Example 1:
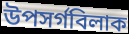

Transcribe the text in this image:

উপসৰ্গবিলাক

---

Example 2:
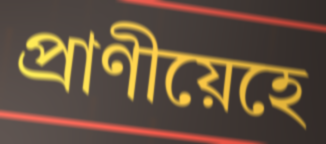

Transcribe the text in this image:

প্ৰাণীয়েহে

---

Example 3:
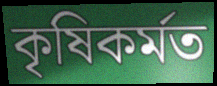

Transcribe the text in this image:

কৃষিকৰ্মত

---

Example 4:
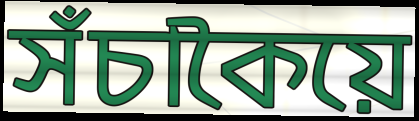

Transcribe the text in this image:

সঁচাকৈয়ে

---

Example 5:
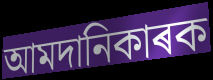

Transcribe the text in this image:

আমদানিকাৰক